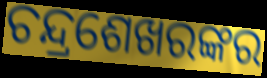
ଚନ୍ଦ୍ରଶେଖରଙ୍କର